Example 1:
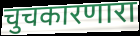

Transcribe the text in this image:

चुचकारणारा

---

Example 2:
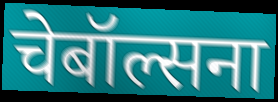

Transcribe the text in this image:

चेबॉल्सना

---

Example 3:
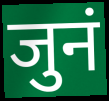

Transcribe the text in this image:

जुनं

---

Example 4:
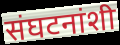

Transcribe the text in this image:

संघटनांशी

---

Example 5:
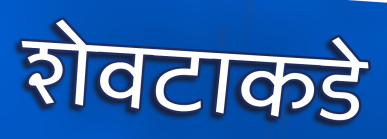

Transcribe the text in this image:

शेवटाकडे